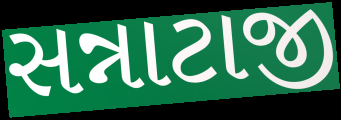
સન્નાટાજી